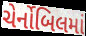
ચેર્નોબિલમાં